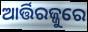
ଆର୍ତ୍ତିରଜ୍ଜୁରେ